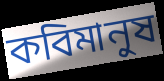
কবিমানুষ